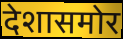
देशासमोर